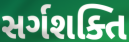
સર્ગશક્તિ